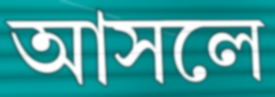
আসলে